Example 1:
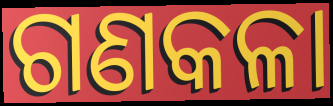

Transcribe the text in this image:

ଗଣକଳା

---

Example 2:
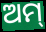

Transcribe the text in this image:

ଅମ୍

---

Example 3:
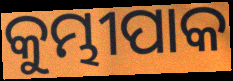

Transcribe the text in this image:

କୁମ୍ଭୀପାକ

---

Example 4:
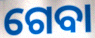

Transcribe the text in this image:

ଗେବା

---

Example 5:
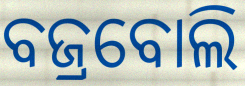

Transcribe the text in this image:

ବଜ୍ରବୋଲି